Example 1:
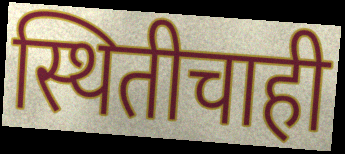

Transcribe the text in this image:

स्थितीचाही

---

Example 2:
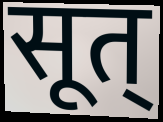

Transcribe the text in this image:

सूत्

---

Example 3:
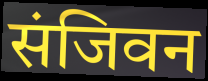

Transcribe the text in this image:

संजिवन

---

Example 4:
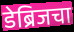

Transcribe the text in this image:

डेब्रिजचा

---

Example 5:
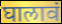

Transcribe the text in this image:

घालावं